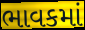
ભાવકમાં